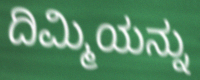
ದಿಮ್ಮಿಯನ್ನು